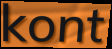
kont